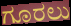
ಗೂರಲು